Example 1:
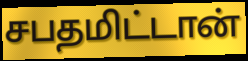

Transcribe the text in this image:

சபதமிட்டான்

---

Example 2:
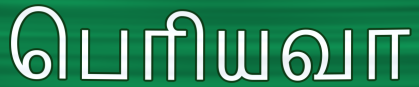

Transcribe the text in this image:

பெரியவா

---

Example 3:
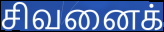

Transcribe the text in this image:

சிவனைக்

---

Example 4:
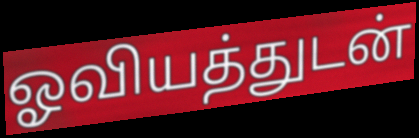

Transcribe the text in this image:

ஓவியத்துடன்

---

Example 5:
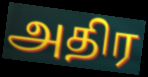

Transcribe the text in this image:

அதிர